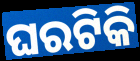
ଘରଟିକି